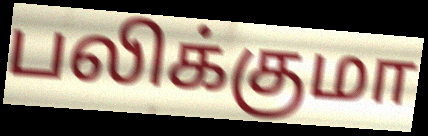
பலிக்குமா